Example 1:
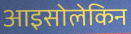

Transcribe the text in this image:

आइसोलेकिन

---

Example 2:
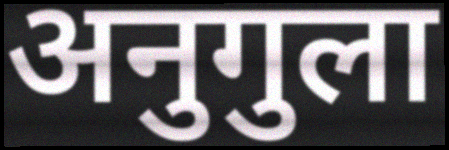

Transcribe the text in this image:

अनुगुला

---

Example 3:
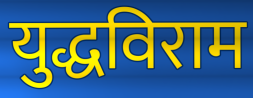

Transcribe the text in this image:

युद्धविराम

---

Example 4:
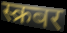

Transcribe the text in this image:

स्‍क्रबर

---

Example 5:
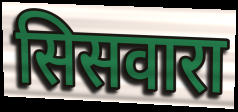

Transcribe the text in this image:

सिसवारा